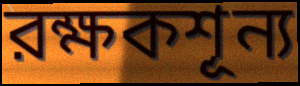
রক্ষকশূন্য